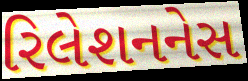
રિલેશનનેસ